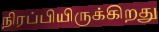
நிரப்பியிருக்கிறது